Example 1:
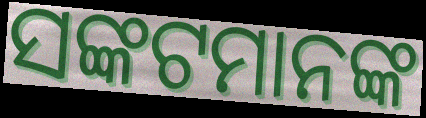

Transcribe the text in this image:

ସଙ୍କଟମାନଙ୍କ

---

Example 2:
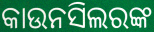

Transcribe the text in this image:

କାଉନସିଲରଙ୍କ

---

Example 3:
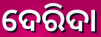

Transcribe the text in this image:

ଦେରିଦା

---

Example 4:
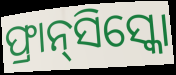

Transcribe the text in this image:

ଫ୍ରାନ୍‌ସିସ୍କୋ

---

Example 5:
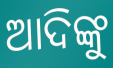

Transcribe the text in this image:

ଆଦିଙ୍କୁ